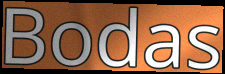
Bodas